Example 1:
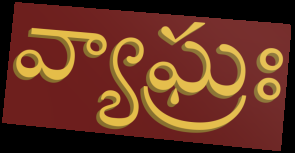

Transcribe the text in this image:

వ్యాఘ్రః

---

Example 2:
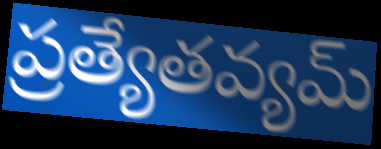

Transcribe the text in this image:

ప్రత్యేతవ్యమ్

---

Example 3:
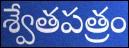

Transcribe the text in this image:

శ్వేతపత్రం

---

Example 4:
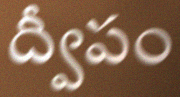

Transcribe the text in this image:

ద్వీపం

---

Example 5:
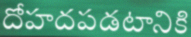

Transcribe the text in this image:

దోహదపడటానికి